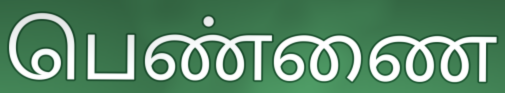
பெண்ணை